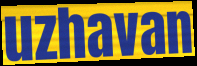
uzhavan